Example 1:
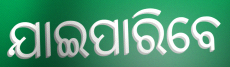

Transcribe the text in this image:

ଯାଇପାରିବେ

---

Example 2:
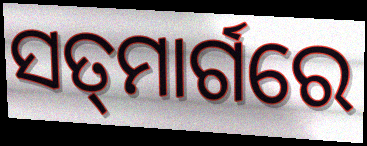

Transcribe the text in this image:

ସତ୍‌ମାର୍ଗରେ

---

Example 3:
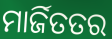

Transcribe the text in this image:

ମାର୍ଜିତତର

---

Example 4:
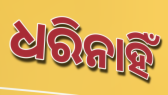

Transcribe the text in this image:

ଧରିନାହିଁ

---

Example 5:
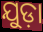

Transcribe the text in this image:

ଯୁଡ଼ା